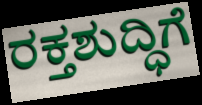
ರಕ್ತಶುದ್ಧಿಗೆ